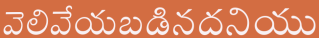
వెలివేయబడినదనియు